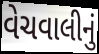
વેચવાલીનું